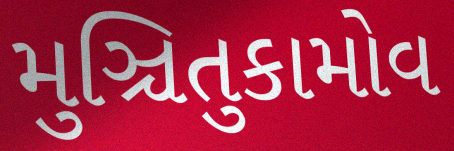
મુઞ્ચિતુકામોવ